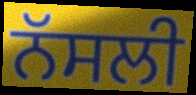
ਨੱਸਲੀ